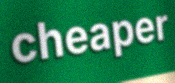
cheaper